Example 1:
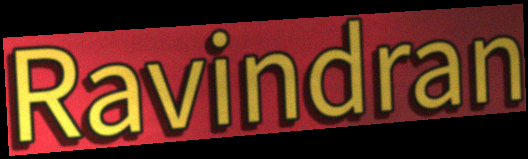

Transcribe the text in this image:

Ravindran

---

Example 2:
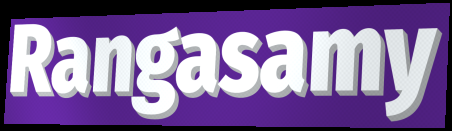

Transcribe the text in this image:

Rangasamy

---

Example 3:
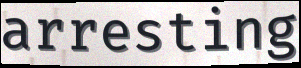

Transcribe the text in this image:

arresting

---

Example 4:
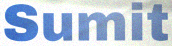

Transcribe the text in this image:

Sumit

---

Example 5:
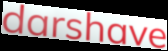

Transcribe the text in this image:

darshave